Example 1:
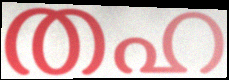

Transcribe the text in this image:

തഹ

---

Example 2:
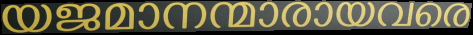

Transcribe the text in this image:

യജമാനന്മാരായവരെ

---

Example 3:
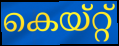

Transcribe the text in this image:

കെയ്റ്റ്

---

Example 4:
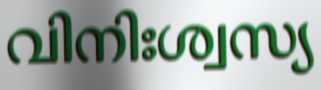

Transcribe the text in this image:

വിനിഃശ്വസ്യ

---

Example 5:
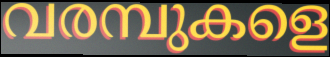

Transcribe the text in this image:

വരമ്പുകളെ